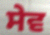
ਸੇਵ